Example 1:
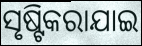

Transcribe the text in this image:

ସୃଷ୍ଟିକରାଯାଇ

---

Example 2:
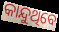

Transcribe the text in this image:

କାନ୍ଦୁଥିବେ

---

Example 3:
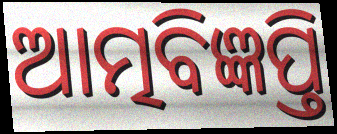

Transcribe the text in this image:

ଆତ୍ମବିଜ୍ଞପ୍ତି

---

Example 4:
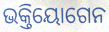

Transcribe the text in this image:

ଭକ୍ତିୟୋଗେନ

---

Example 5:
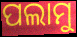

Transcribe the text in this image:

ପଲାମୁ